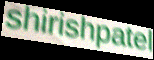
shirishpatel